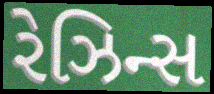
રેઝિન્સ